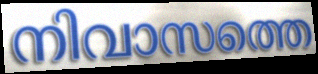
നിവാസത്തെ